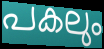
പകലും